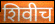
शिवीच